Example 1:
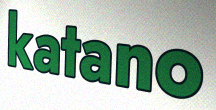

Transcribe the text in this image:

katano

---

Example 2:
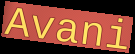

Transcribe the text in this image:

Avani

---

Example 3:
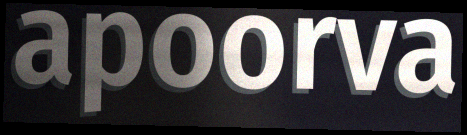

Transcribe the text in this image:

apoorva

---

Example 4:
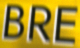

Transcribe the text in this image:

BRE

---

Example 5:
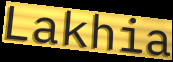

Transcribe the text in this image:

Lakhia